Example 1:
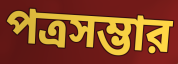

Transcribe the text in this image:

পত্রসম্ভার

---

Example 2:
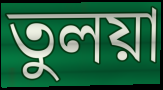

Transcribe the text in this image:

তুলয়া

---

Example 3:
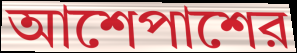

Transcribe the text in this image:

আশেপাশের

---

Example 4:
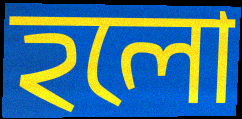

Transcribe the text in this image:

হলো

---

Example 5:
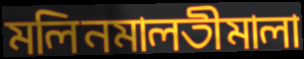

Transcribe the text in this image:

মলিনমালতীমালা